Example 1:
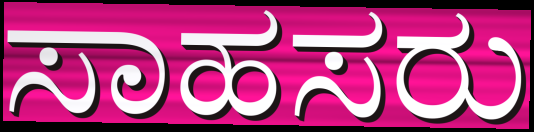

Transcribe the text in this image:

ಸಾಹಸರು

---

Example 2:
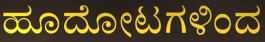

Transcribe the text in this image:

ಹೂದೋಟಗಳಿಂದ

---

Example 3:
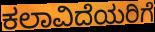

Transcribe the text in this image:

ಕಲಾವಿದೆಯರಿಗೆ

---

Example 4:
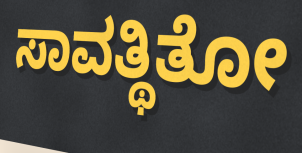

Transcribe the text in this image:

ಸಾವತ್ಥಿತೋ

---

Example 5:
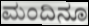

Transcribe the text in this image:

ಮಂದಿನೂ